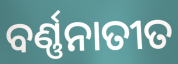
ବର୍ଣ୍ଣନାତୀତ